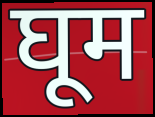
घूम